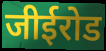
जीईरोड